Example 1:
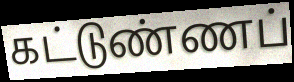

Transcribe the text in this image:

கட்டுண்ணப்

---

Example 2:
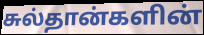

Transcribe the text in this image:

சுல்தான்களின்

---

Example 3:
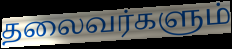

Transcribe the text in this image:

தலைவர்களும்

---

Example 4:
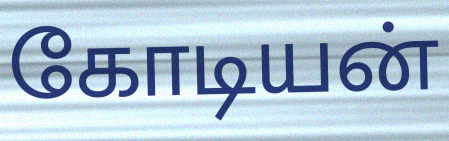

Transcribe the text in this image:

கோடியன்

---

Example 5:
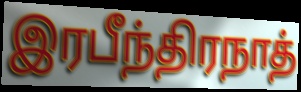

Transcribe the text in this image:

இரபீந்திரநாத்